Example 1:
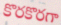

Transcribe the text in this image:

కొరకొరగా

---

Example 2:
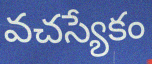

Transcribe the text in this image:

వచస్యేకం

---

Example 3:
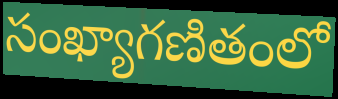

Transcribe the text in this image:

సంఖ్యాగణితంలో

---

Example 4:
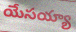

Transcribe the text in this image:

యేసయ్యా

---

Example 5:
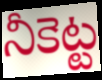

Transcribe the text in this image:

నీకెట్ట